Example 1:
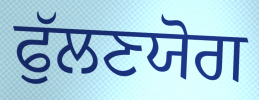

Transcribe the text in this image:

ਫੁੱਲਣਯੋਗ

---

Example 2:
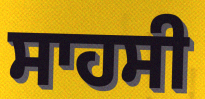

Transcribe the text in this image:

ਸਾਹਸੀ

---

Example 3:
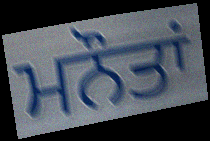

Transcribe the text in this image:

ਮਨੌਤਾਂ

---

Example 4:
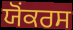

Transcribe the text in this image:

ਯੋੰਕਰਸ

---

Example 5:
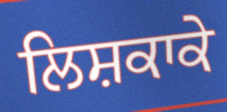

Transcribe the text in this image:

ਲਿਸ਼ਕਾਕੇ